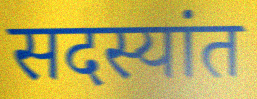
सदस्यांत